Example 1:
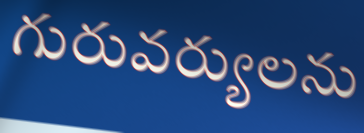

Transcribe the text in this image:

గురువర్యులను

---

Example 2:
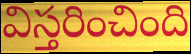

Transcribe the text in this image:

విస్తరించింది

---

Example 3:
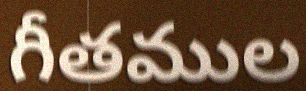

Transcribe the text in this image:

గీతముల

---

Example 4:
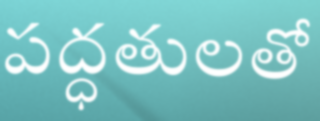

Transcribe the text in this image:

పద్ధతులతో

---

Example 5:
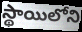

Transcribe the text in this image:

స్థాయిలోని